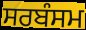
ਸਰਬੰਸਮ